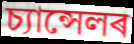
চ্যান্সেলৰ